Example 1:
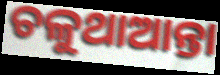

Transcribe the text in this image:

ଚଳୁଥାଆନ୍ତା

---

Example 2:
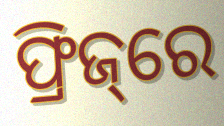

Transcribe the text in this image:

ଫ୍ରିଜ୍‌ରେ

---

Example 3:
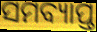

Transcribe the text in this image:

ସମବ୍ୟାପ୍ତ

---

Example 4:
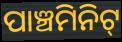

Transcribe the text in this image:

ପାଞ୍ଚମିନିଟ୍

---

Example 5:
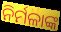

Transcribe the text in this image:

ନିର୍ମଳାଙ୍କ